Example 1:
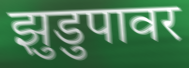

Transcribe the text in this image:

झुडुपावर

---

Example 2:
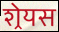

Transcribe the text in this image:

श्रेयस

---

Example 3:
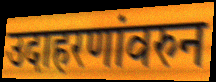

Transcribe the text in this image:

उदाहरणांवरुन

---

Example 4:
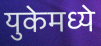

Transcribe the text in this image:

युकेमध्ये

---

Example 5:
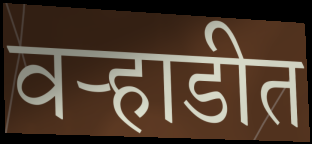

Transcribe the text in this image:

वऱ्हाडीत